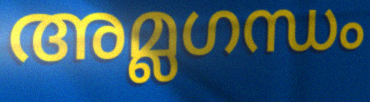
അമ്ലഗന്ധം